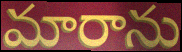
మారాను